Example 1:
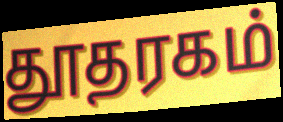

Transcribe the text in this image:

தூதரகம்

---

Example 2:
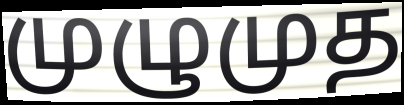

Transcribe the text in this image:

முழுமுத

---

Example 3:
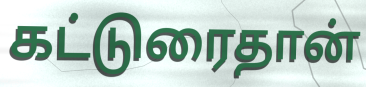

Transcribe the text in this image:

கட்டுரைதான்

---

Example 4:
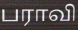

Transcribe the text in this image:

பராவி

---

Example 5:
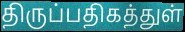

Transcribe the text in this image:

திருப்பதிகத்துள்